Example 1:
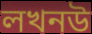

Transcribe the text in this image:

লখনউ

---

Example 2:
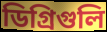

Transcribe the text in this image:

ডিগ্রিগুলি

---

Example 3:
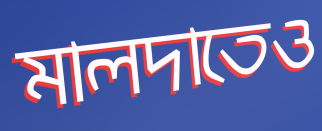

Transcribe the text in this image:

মালদাতেও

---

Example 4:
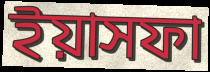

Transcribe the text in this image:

ইয়াসফা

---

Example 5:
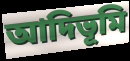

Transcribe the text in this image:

আদিভূমি